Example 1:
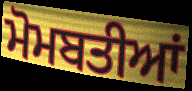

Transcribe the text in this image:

ਮੋਮਬਤੀਆਂ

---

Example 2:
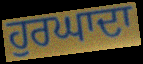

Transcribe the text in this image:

ਹੁਰਘਾਦਾ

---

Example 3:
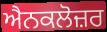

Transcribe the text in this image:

ਐਨਕਲੋਜ਼ਰ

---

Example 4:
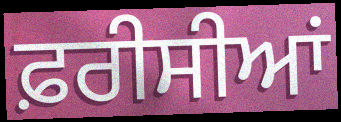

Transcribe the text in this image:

ਫ਼ਰੀਸੀਆਂ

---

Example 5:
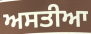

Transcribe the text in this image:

ਅਸਤੀਆ